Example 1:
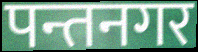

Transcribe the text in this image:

पन्तनगर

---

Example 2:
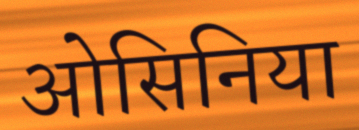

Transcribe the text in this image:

ओसिनिया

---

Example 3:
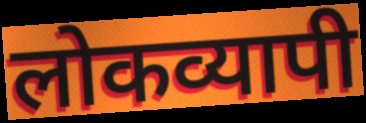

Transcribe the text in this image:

लोकव्यापी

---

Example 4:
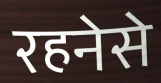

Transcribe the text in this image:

रहनेसे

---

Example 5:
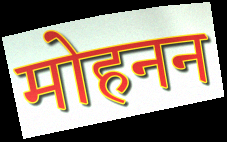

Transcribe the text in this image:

मोहनन